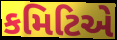
કમિટિએ